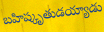
బహిష్కృతుడయ్యాడు